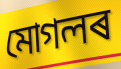
মোগলৰ